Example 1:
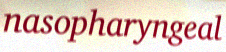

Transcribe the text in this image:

nasopharyngeal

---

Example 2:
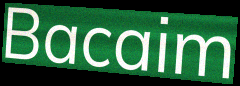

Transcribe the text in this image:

Bacaim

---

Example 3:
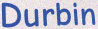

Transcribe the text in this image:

Durbin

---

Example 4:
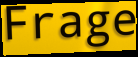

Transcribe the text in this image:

Frage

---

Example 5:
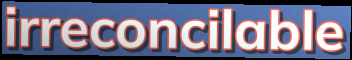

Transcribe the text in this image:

irreconcilable